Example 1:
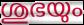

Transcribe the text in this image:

ശുഭയും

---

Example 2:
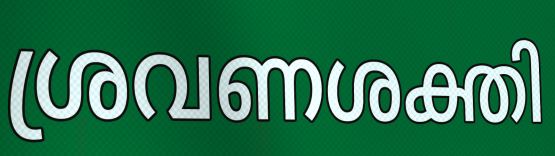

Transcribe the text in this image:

ശ്രവണശക്തി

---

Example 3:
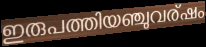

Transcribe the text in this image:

ഇരുപത്തിയഞ്ചുവര്ഷം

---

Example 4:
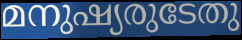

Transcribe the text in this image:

മനുഷ്യരുടേതു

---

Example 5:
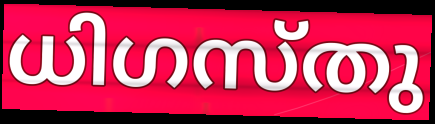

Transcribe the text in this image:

ധിഗസ്തു